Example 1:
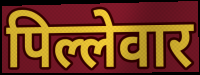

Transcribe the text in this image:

पिल्लेवार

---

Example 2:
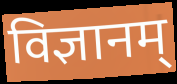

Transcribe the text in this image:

विज्ञानम्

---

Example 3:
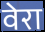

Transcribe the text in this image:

वेरा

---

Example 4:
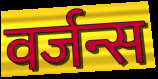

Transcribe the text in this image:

वर्जन्स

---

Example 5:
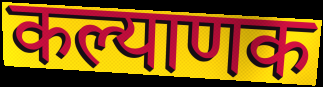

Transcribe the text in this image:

कल्याणक